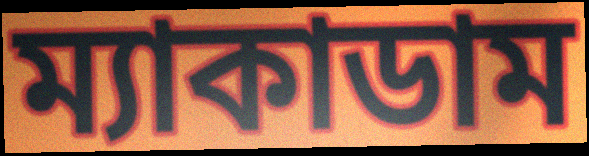
ম্যাকাডাম